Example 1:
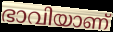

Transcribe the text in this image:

ഭാവിയാണ്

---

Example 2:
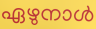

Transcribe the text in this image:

ഏഴുനാൾ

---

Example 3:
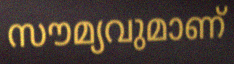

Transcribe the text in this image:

സൗമ്യവുമാണ്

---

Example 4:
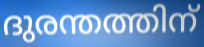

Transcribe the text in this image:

ദുരന്തത്തിന്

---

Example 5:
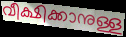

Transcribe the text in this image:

വീക്ഷിക്കാനുള്ള